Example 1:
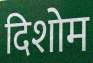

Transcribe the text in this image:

दिशोम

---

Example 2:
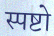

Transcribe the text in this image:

स्पष्टो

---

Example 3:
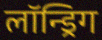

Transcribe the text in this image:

लॉन्ड्रिग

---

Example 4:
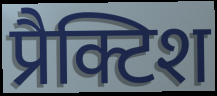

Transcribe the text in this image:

प्रैक्टिश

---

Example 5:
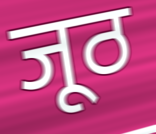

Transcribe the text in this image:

जूठ